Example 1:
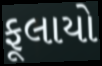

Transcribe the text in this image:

ફૂલાયો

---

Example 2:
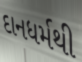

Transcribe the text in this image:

દાનધર્મથી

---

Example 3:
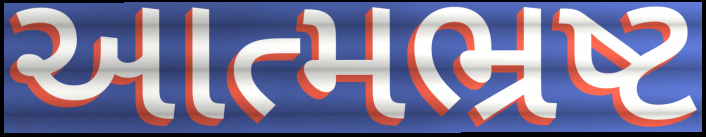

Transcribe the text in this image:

આત્મભ્રષ્ટ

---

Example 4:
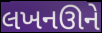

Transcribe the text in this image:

લખનઊને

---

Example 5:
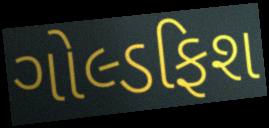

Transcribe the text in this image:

ગોલ્ડફિશ